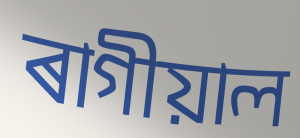
ৰাগীয়াল